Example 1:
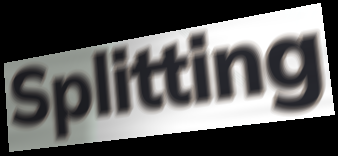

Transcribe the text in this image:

Splitting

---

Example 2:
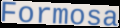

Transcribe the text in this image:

Formosa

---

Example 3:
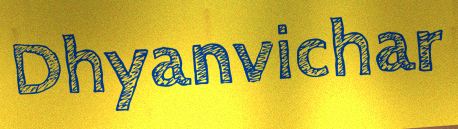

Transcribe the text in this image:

Dhyanvichar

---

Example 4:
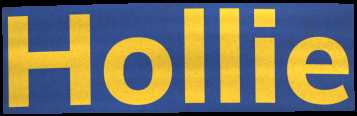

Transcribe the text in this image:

Hollie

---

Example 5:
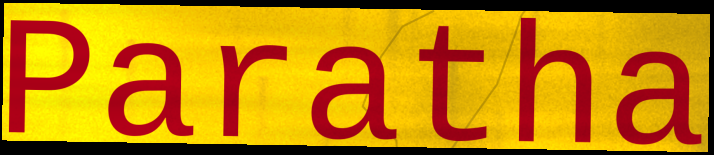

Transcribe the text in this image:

Paratha